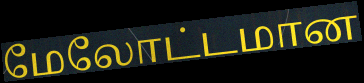
மேலோட்டமான